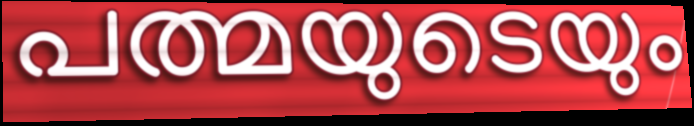
പത്മയുടെയും